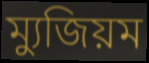
ম্যুজিয়ম